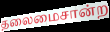
தலைமைசான்ற